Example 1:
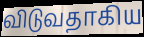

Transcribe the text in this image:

விடுவதாகிய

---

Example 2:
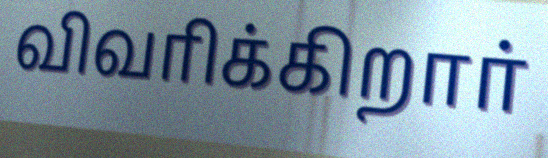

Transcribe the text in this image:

விவரிக்கிறார்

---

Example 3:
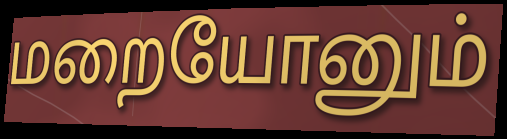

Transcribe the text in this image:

மறையோனும்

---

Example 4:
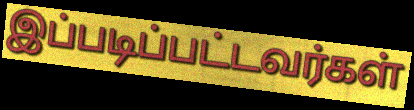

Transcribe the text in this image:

இப்படிப்பட்டவர்கள்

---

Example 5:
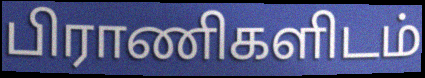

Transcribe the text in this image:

பிராணிகளிடம்